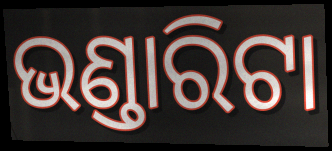
ଭଣ୍ଡାରିଟା